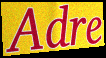
Adre